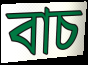
বাচ